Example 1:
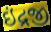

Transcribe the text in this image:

ઇંદ્રજી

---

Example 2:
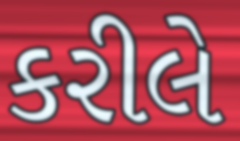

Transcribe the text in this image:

કરીલે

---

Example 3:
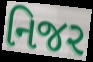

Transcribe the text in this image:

નિજર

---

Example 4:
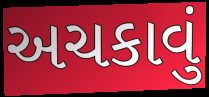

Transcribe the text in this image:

અચકાવું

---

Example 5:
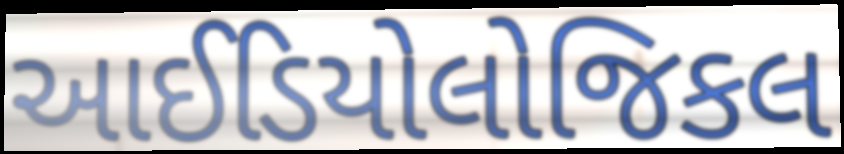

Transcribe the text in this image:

આઈડિયોલોજિકલ